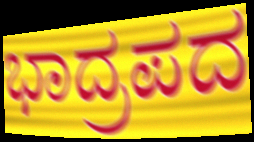
ಭಾದ್ರಪದ